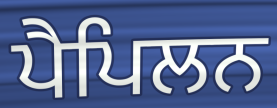
ਪੈਪਿਲਨ